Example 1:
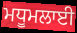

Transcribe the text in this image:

ਮਧੂਮਲਾਈ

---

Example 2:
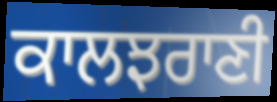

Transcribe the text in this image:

ਕਾਲਝਰਾਣੀ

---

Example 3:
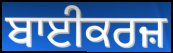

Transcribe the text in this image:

ਬਾਈਕਰਜ਼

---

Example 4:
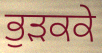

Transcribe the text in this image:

ਭੁੜਕਕੇ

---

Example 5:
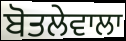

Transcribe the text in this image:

ਬੋਤਲੇਵਾਲਾ